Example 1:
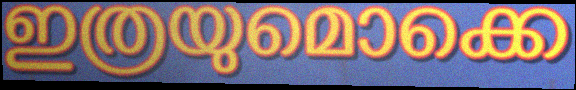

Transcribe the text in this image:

ഇത്രയുമൊക്കെ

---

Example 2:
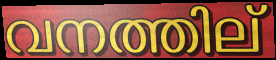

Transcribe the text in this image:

വനത്തില്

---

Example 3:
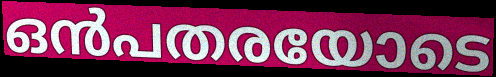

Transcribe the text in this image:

ഒൻപതരയോടെ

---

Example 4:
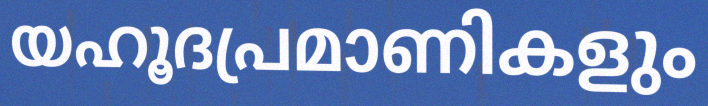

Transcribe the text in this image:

യഹൂദപ്രമാണികളും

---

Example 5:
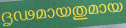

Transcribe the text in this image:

ദൃഢമായതുമായ